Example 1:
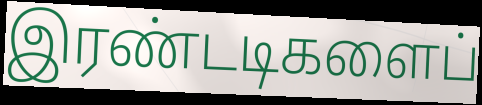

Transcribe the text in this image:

இரண்டடிகளைப்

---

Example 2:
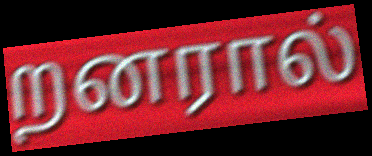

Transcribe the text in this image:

றனரால்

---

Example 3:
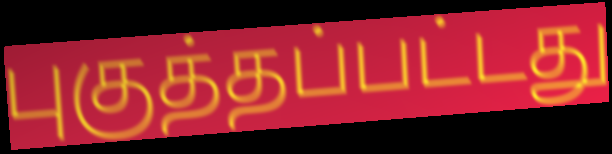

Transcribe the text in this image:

புகுத்தப்பட்டது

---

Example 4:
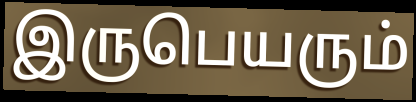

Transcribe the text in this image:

இருபெயரும்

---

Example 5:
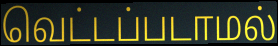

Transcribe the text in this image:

வெட்டப்படாமல்